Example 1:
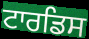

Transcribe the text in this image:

ਟਾਰਡਿਸ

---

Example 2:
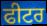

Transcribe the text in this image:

ਫੀਟਰ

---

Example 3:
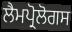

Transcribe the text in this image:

ਲੈਮਪ੍ਰੋਲੋਗਸ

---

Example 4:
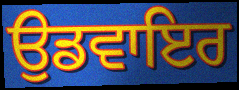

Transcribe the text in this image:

ਉਡਵਾਇਰ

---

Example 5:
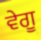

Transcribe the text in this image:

ਵੇਗੂ